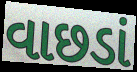
વાછડાં